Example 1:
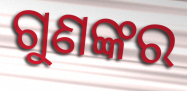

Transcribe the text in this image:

ଗୁଣଙ୍କର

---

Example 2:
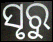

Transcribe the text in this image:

ସୃରୁ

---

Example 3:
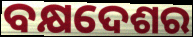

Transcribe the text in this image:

ବକ୍ଷଦେଶର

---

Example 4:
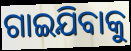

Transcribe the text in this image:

ଗାଇଯିବାକୁ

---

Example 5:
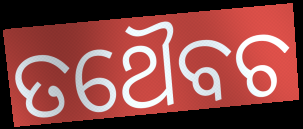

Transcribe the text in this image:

ତଥୈବଚ